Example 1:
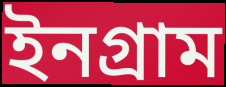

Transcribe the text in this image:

ইনগ্রাম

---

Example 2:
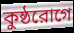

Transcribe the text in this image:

কুষ্ঠরোগে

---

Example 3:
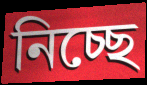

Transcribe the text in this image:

নিচ্ছে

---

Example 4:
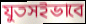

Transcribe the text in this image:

যুতসইভাবে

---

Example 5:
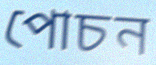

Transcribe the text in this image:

পোচন